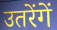
उतरेंगें